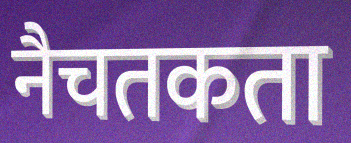
नैचतकता